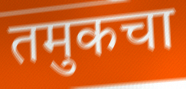
तमुकचा